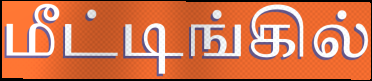
மீட்டிங்கில்